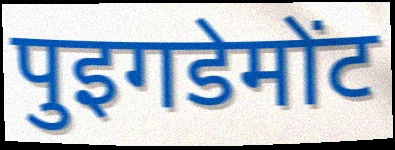
पुइगडेमोंट